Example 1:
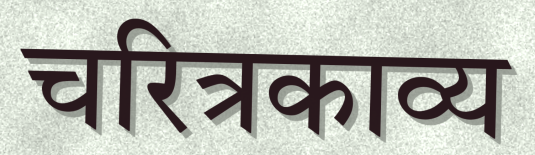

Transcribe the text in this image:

चरित्रकाव्य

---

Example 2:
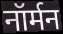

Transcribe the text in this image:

नॉर्मन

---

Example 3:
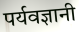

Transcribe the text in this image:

पर्यवज्ञानी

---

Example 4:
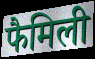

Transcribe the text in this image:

फैमिली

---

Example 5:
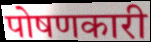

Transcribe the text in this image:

पोषणकारी